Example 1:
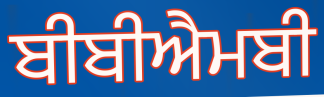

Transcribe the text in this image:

ਬੀਬੀਐਮਬੀ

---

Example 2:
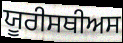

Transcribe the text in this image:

ਯੂਰੀਸਥੀਅਸ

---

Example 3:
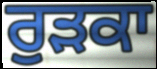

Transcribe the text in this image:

ਰੁੜਕਾ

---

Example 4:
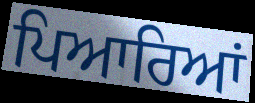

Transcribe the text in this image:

ਪਿਆਰਿਆਂ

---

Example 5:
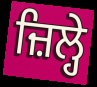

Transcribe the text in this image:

ਜ਼ਿਲ੍ਹੇ